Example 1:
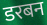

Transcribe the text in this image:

डरबन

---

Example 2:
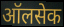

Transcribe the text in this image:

ऑलसेक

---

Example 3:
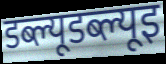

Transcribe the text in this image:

डब्ल्यूडब्ल्यूइ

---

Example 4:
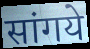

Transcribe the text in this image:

सांगये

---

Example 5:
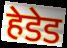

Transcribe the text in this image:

हेडेड